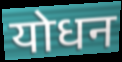
योधन